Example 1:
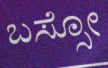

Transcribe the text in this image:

ಬಸ್ಸೋ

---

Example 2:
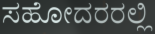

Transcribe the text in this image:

ಸಹೋದರರಲ್ಲಿ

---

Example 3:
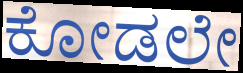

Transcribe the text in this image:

ಕೋಡಲೇ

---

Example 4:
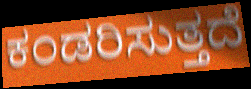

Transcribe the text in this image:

ಕಂಡರಿಸುತ್ತದೆ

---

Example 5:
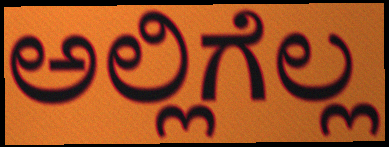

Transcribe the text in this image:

ಅಲ್ಲಿಗೆಲ್ಲ